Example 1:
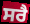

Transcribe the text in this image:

ਸਰੈ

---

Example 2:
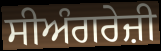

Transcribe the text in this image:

ਸੀਅੰਗਰੇਜ਼ੀ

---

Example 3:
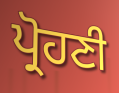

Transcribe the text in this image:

ਪ੍ਰੋਹਣੀ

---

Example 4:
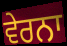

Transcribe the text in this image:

ਵੇਰਨਾ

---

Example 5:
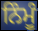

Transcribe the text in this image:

ਨਿੰਮੂੰ